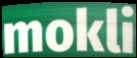
mokli